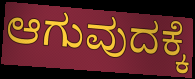
ಆಗುವುದಕ್ಕೆ